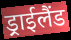
ड्राईलैंड